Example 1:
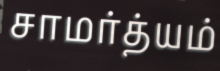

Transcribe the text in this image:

சாமர்த்யம்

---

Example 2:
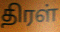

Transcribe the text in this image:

திரள்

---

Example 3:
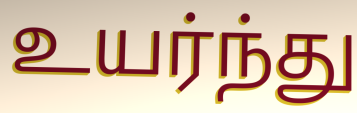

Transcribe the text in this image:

உயர்ந்து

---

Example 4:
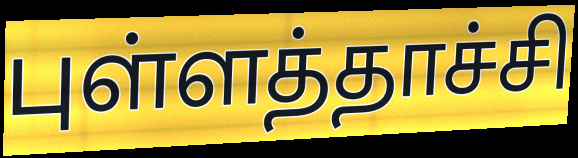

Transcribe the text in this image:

புள்ளத்தாச்சி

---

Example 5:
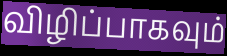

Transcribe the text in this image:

விழிப்பாகவும்